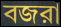
বজরা